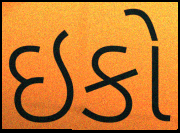
ઇકો